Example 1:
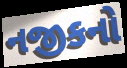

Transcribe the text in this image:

નજીકનો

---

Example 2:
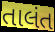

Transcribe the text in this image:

તાલંત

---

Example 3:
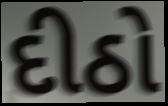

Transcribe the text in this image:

દીઠો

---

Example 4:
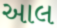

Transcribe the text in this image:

આલ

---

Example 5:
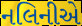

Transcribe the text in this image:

નલિનીએ